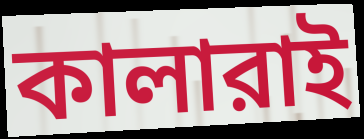
কালারাই